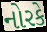
નોરકે